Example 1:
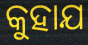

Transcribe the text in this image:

କୁହାଯ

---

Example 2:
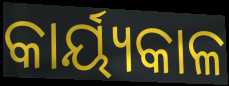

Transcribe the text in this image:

କାର୍ୟ୍ୟକାଳ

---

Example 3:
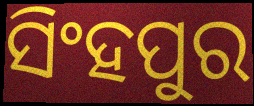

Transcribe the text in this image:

ସିଂହପୁର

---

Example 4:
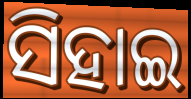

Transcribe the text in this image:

ସିହାଇ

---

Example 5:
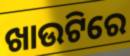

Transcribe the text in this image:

ଖାଉଟିରେ